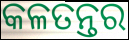
କଳତନ୍ତର